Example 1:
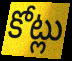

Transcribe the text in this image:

కోట్లు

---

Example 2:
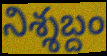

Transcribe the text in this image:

నిశ్శబ్దం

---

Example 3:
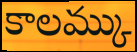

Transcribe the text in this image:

కాలమ్కు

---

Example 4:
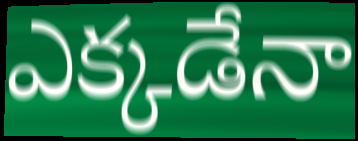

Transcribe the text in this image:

ఎక్కడేనా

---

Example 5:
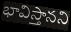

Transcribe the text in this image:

భావిస్తానని